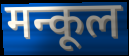
मन्कूल